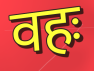
वहः